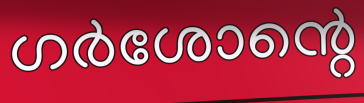
ഗർശോന്റെ